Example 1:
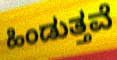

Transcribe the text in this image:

ಹಿಂಡುತ್ತವೆ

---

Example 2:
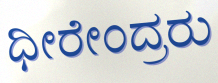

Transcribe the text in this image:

ಧೀರೇಂದ್ರರು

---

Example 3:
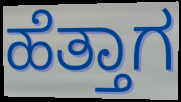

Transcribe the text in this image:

ಹೆತ್ತಾಗ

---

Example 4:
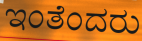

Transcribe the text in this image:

ಇಂತೆಂದರು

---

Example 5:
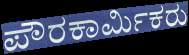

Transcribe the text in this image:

ಪೌರಕಾರ್ಮಿಕರು